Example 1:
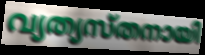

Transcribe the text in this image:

വ്യത്യസ്തനായി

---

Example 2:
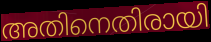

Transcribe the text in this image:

അതിനെതിരായി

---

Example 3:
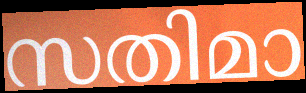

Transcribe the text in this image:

സതിമാ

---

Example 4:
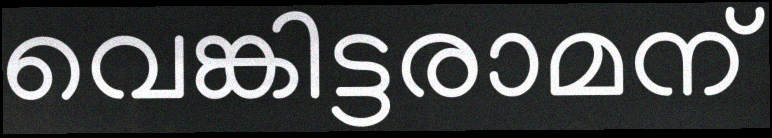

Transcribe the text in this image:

വെങ്കിട്ടരാമന്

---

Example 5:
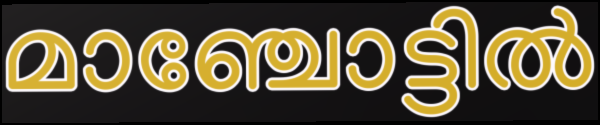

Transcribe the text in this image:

മാഞ്ചോട്ടിൽ